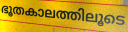
ഭൂതകാലത്തിലൂടെ